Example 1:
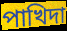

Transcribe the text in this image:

পাখিদা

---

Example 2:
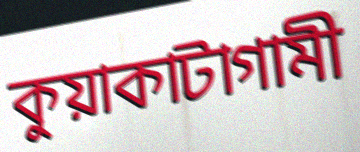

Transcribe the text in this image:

কুয়াকাটাগামী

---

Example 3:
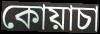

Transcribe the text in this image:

কোয়াচা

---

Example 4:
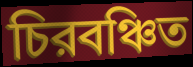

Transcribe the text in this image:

চিরবঞ্চিত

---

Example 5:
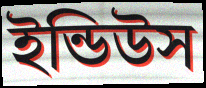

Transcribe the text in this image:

ইন্ডিউস